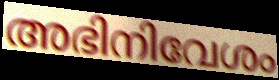
അഭിനിവേശം